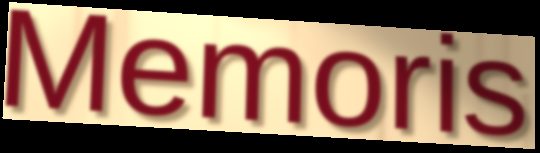
Memoris